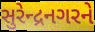
સુરેન્દ્રનગરને